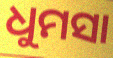
ଧୁମସା